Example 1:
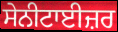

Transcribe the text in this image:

ਸੇਨੀਟਾਈਜ਼ਰ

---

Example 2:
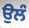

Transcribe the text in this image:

ਉਲੰ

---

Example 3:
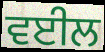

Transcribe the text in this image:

ਵਈਲ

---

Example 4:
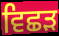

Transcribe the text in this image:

ਵਿਛਡ਼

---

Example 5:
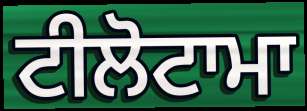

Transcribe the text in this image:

ਟੀਲੋਟਾਮਾ